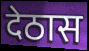
देठास